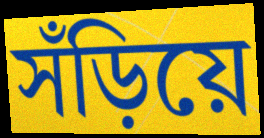
সঁড়িয়ে